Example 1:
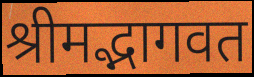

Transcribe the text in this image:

श्रीमद्भागवत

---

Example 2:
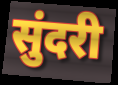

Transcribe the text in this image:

सुंदरी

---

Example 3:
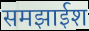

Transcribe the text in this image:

समझाईश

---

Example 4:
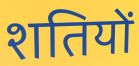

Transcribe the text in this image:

शतियों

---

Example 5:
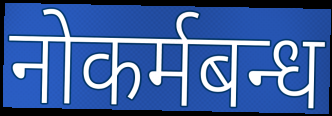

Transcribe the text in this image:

नोकर्मबन्ध